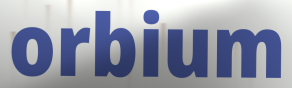
orbium